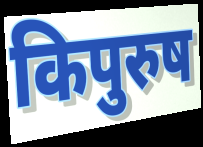
किपुरुष